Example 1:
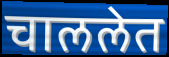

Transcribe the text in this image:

चाललेत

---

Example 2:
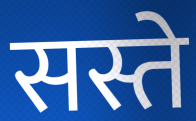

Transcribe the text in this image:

सस्ते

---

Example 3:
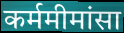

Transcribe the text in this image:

कर्ममीमांसा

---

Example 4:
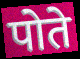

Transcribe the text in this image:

पोते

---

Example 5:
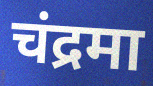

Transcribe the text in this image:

चंद्रमा